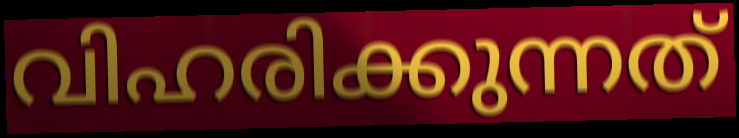
വിഹരിക്കുന്നത്